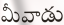
మీవాడు